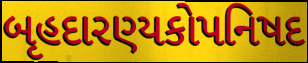
બૃહદારણ્યકોપનિષદ